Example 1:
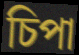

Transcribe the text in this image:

চিপা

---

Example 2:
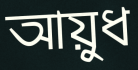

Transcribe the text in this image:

আয়ুধ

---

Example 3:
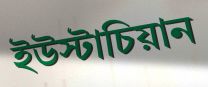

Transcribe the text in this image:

ইউস্টাচিয়ান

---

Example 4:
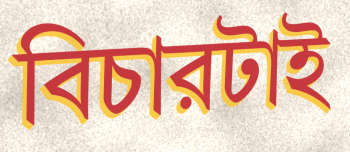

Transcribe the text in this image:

বিচারটাই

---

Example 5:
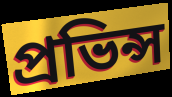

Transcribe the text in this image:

প্রভিন্স